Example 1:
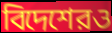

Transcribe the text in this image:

বিদেশেরও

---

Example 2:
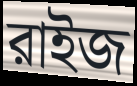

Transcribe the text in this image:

রাইজ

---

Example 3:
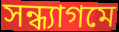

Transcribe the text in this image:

সন্ধ্যাগমে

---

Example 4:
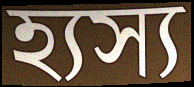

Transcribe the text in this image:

হ্যস্য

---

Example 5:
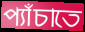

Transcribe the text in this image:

প্যাঁচাতে